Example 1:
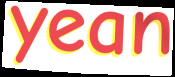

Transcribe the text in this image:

yean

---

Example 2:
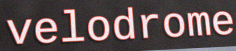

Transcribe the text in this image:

velodrome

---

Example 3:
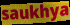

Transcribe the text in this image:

saukhya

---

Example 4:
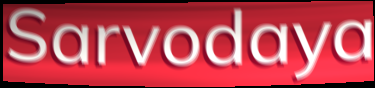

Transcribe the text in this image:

Sarvodaya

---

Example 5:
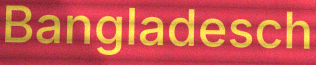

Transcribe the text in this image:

Bangladesch